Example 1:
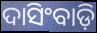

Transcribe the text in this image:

ଦାସିଂବାଡ଼ି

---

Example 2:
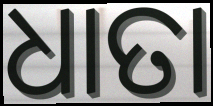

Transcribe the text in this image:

ଧାତା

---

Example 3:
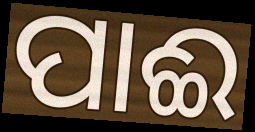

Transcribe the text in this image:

ପାଈ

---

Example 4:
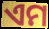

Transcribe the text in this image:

ଏମ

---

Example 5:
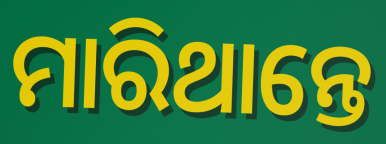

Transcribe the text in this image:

ମାରିଥାନ୍ତେ